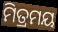
ମିତ୍ରମୟ